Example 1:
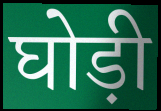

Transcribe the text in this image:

घोड़ी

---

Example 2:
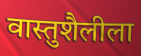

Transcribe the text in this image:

वास्तुशैलीला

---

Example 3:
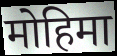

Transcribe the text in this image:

मोहिमा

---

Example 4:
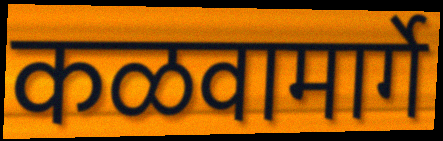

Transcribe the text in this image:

कळवामार्गे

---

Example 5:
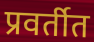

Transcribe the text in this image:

प्रवर्तीत